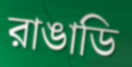
রাঙাডি